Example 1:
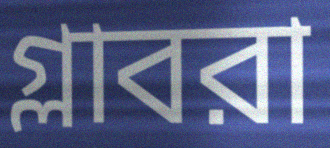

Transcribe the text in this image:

গ্লাবরা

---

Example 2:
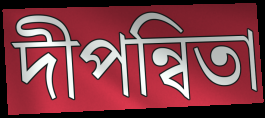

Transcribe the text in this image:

দীপন্বিতা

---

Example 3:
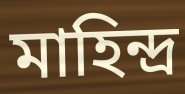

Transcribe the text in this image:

মাহিন্দ্র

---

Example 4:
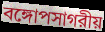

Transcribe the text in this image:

বঙ্গোপসাগরীয়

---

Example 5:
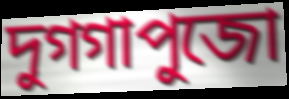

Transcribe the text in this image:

দুগগাপুজো